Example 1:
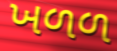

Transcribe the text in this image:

ખળળ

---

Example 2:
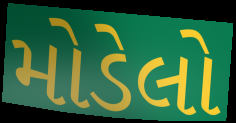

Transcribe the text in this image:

મોડેલો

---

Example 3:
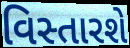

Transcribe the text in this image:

વિસ્તારશે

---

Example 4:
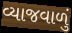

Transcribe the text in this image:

વ્યાજવાળું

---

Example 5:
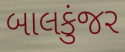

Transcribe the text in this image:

બાલકુંજર